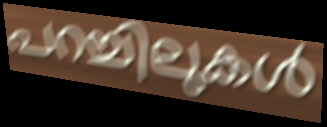
പറച്ചിലുകൾ